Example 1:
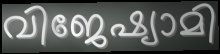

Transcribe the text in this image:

വിജേഷ്യാമി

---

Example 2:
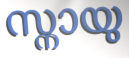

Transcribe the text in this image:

സ്നായു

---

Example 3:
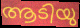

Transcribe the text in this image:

ആടിയു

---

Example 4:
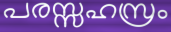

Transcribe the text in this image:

പരസ്സഹസ്രം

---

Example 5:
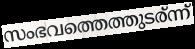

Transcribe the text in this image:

സംഭവത്തെത്തുടര്ന്ന്